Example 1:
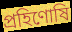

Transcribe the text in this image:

প্রহিণোষি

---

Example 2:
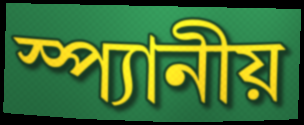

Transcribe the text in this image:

স্প্যানীয়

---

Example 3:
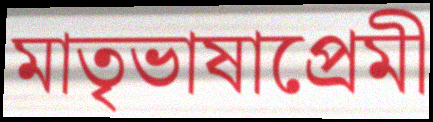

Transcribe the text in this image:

মাতৃভাষাপ্রেমী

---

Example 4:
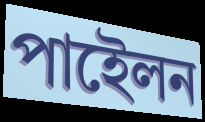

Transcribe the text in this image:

পাইেলন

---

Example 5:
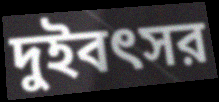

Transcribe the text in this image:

দুইবৎসর